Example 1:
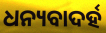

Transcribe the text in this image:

ଧନ୍ୟବାଦର୍ହ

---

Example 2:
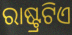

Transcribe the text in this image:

ରାଷ୍ଟ୍ରଟିଏ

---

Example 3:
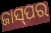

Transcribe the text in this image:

ଜାସ୍‌ପର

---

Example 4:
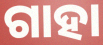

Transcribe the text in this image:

ଗାହା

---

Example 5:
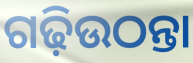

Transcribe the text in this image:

ଗଢ଼ିଉଠନ୍ତା